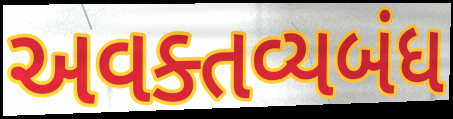
અવક્તવ્યબંધ